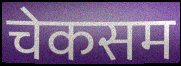
चेकसम